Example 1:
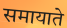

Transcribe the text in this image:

समायाते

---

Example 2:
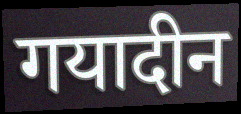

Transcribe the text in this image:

गयादीन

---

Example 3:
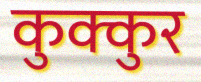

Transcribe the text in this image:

कुक्कुर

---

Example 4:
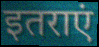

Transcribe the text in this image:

इतराएं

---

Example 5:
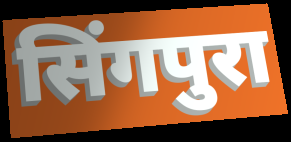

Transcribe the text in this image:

सिंगपुरा